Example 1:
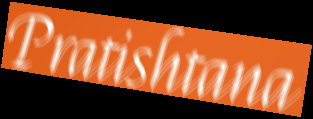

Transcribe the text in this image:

Pratishtana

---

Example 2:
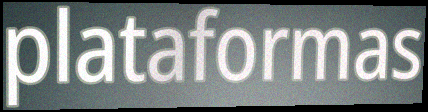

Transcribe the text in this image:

plataformas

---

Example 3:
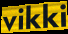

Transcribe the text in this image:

vikki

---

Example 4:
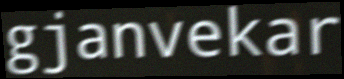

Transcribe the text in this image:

gjanvekar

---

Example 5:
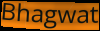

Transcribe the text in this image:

Bhagwat